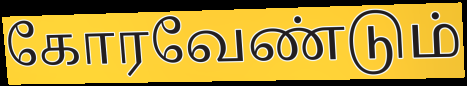
கோரவேண்டும்